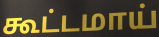
கூட்டமாய்